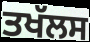
ਤਖੱਲਸ